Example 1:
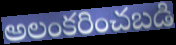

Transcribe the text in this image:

అలంకరించబడి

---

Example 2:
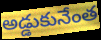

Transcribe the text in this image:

అడ్డుకునేంత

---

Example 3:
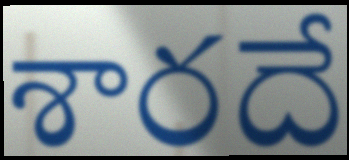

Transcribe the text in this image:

శారదే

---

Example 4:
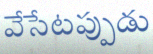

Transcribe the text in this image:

వేసేటప్పుడు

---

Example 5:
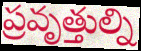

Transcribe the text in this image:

ప్రవృత్తుల్ని